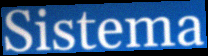
Sistema